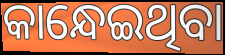
କାନ୍ଧେଇଥିବା